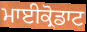
ਮਾਈਕ੍ਰੋਡਾਟ